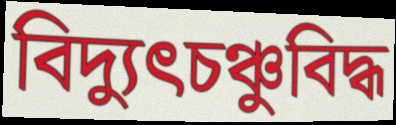
বিদ্যুৎচঞ্চুবিদ্ধ